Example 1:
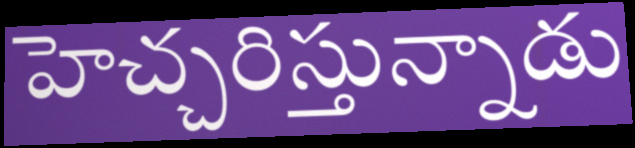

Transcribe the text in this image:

హెచ్చరిస్తున్నాడు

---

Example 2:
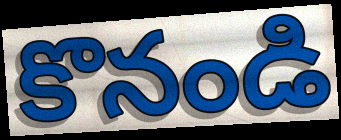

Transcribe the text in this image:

కొనండి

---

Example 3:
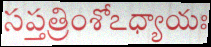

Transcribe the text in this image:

సప్తత్రింశోఽధ్యాయః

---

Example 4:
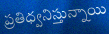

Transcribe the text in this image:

ప్రతిధ్వనిస్తున్నాయి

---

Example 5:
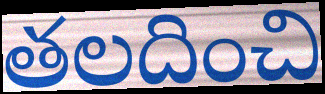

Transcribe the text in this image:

తలదించి